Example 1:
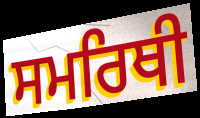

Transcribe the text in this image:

ਸਮਰਿਥੀ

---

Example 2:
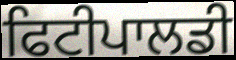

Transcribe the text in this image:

ਫਿਟੀਪਾਲਡੀ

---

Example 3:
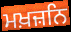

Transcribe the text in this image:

ਮਖ਼ਜ਼ਨਿ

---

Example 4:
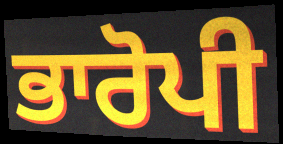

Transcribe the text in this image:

ਭਾਰੋਪੀ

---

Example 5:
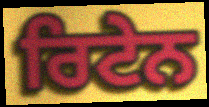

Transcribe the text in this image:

ਰਿਟੇਨ